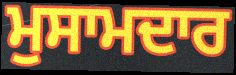
ਮੁਸਾਮਦਾਰ